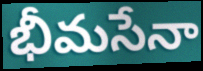
భీమసేనా